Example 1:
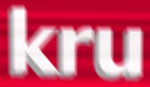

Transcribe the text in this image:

kru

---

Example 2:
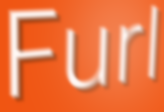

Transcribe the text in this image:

Furl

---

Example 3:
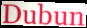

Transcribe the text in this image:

Dubun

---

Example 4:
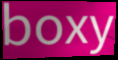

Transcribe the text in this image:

boxy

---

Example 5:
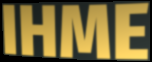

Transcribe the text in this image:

IHME